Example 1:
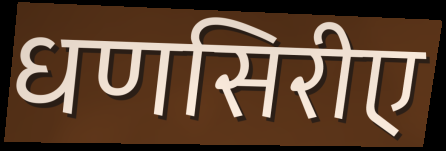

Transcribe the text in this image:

धणसिरीए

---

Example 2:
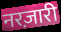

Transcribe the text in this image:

नरज़ारी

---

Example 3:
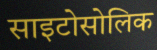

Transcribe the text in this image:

साइटोसोलिक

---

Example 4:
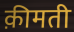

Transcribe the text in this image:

क़ीमती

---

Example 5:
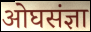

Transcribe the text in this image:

ओघसंज्ञा